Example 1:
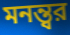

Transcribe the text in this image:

মনন্ত্বর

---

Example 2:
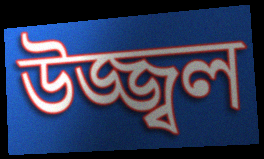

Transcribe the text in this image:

উজ্জ্বল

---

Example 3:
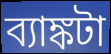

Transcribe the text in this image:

ব্যাঙ্কটা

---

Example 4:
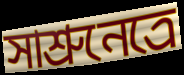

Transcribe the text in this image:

সাশ্রুনেত্রে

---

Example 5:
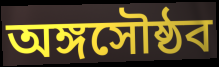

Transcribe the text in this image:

অঙ্গসৌষ্ঠব